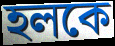
হলকে